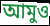
আমুও